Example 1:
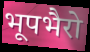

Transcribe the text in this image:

भूपभैरो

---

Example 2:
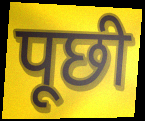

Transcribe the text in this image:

पूछी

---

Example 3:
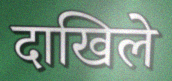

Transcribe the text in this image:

दाखिले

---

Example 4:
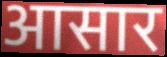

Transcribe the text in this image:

आसार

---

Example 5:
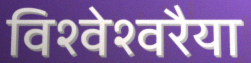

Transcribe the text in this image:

विश्वेश्वरैया